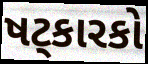
ષટ્કારકો